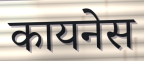
कायनेस